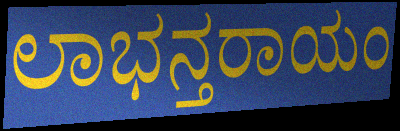
ಲಾಭನ್ತರಾಯಂ